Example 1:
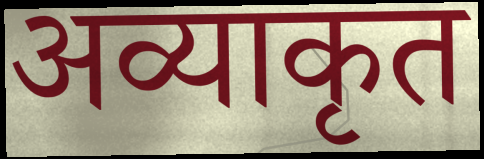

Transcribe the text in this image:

अव्याकृत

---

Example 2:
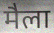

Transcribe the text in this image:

मैला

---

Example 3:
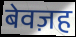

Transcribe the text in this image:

बेवज़ह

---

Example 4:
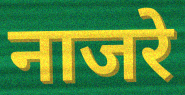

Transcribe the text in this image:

नाजरे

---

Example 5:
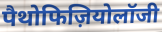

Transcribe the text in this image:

पैथोफिज़ियोलॉजी